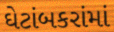
ઘેટાંબકરાંમાં